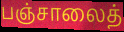
பஞ்சாலைத்